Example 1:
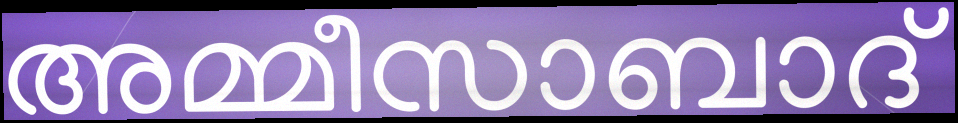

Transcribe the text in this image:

അമ്മീസാബാദ്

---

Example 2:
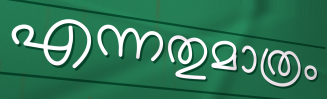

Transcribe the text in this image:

എന്നതുമാത്രം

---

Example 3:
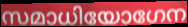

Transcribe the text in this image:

സമാധിയോഗേന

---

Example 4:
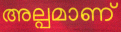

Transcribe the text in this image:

അല്പമാണ്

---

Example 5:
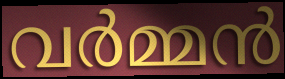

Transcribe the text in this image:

വർമ്മൻ